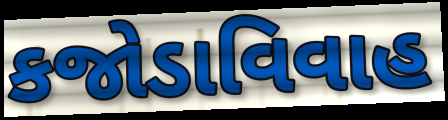
કજોડાવિવાહ